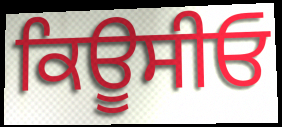
ਕਿਊਸੀਓ